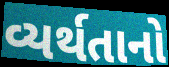
વ્યર્થતાનો